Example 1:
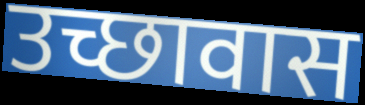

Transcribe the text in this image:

उच्छावास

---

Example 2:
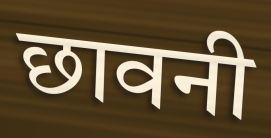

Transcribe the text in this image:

छावनी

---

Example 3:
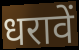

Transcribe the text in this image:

धरावें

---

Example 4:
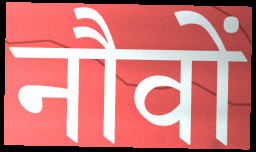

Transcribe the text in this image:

नौवों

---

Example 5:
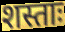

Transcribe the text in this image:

शस्ताः